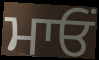
ਮਾਓਂ